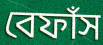
বেফাঁস